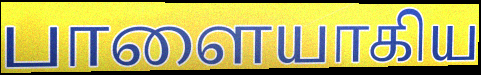
பாளையாகிய